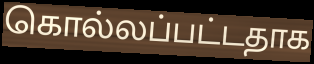
கொல்லப்பட்டதாக